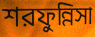
শরফুন্নিসা